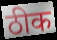
ठीक